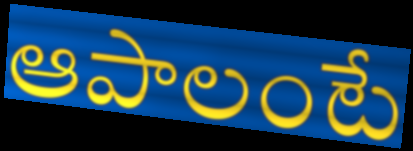
ఆపాలంటే